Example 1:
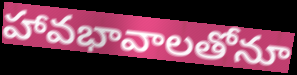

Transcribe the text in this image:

హావభావాలతోనూ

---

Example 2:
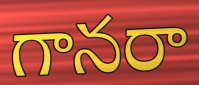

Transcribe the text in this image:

గానరా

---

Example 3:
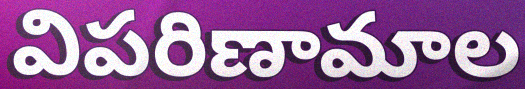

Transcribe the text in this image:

విపరిణామాల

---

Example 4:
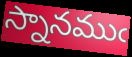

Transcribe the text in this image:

స్నానముఁ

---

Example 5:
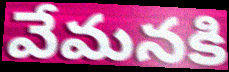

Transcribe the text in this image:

వేమనకి